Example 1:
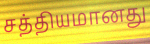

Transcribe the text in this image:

சத்தியமானது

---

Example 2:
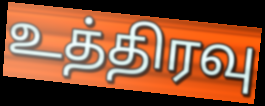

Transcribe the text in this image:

உத்திரவு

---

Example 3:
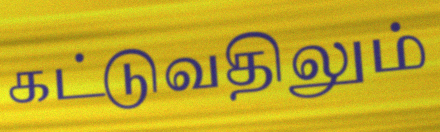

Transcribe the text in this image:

கட்டுவதிலும்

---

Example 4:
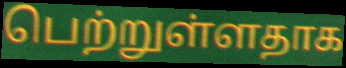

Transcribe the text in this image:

பெற்றுள்ளதாக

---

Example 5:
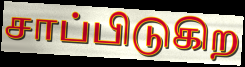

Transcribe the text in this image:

சாப்பிடுகிற